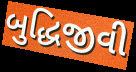
બુદ્ધિજીવી